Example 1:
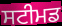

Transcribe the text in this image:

ਸਟੀਮਡ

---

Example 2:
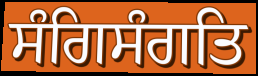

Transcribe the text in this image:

ਸੰਗਿਸੰਗਤਿ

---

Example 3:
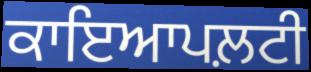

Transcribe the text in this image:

ਕਾਇਆਪਲ਼ਟੀ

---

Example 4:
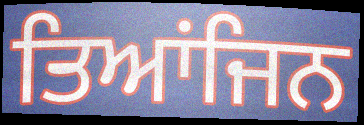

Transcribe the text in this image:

ਤਿਆਂਜਿਨ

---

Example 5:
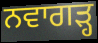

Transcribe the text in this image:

ਨਵਾਗੜ੍ਹ